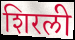
शिरली